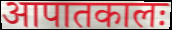
आपातकालः